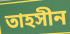
তাহসীন